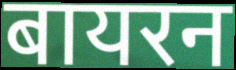
बायरन